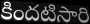
కిందటిసారి